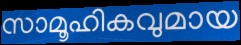
സാമൂഹികവുമായ